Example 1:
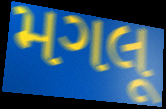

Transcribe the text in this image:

મગલૂ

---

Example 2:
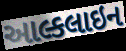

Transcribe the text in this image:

આલ્કલાઇન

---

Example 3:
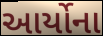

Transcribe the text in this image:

આર્યોના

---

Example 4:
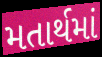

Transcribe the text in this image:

મતાર્થમાં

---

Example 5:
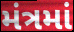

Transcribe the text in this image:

મંત્રમાં